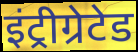
इंट्रीग्रेटेड